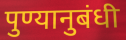
पुण्यानुबंधी